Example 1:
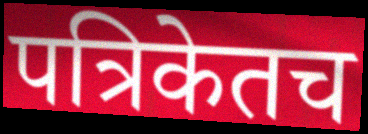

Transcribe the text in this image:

पत्रिकेतच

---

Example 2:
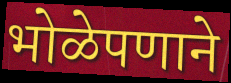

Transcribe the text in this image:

भोळेपणाने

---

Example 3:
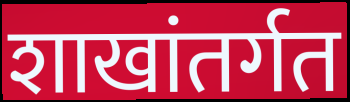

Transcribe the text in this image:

शाखांतर्गत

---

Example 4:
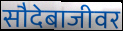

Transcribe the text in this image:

सौदेबाजीवर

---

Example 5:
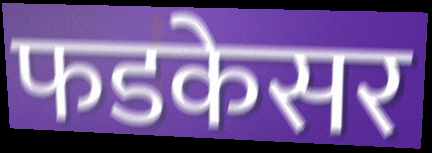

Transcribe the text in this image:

फडकेसर